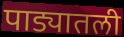
पाड्यातली